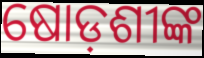
ଷୋଡ଼ଶୀଙ୍କ